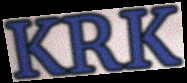
KRK